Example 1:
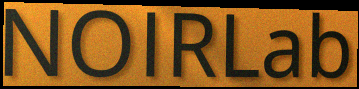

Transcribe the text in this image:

NOIRLab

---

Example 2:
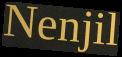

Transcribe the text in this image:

Nenjil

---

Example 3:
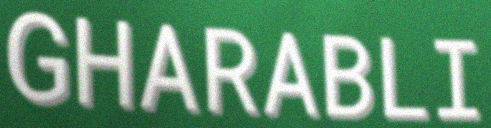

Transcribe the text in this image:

GHARABLI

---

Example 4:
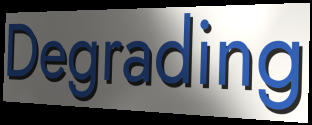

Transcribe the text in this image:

Degrading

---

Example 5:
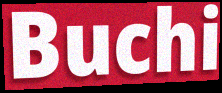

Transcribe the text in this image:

Buchi